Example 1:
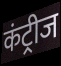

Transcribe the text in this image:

कंट्रीज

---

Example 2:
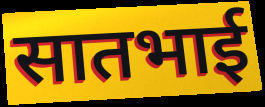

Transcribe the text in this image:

सातभाई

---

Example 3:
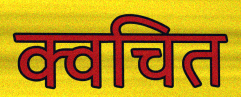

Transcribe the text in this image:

क्वचित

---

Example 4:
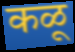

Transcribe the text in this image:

कळू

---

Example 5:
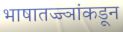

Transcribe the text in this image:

भाषातज्ज्ञांकडून